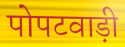
पोपटवाड़ी